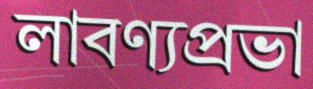
লাবণ্যপ্রভা